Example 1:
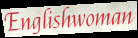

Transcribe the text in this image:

Englishwoman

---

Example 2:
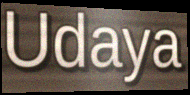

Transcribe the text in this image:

Udaya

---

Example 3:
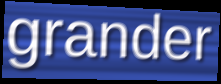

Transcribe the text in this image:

grander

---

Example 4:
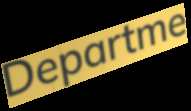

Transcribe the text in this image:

Departme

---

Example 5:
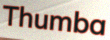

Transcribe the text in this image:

Thumba